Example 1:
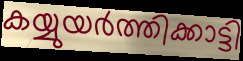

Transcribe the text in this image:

കയ്യുയർത്തിക്കാട്ടി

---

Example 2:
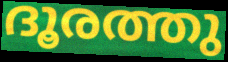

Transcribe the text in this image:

ദൂരത്തു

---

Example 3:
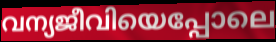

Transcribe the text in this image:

വന്യജീവിയെപ്പോലെ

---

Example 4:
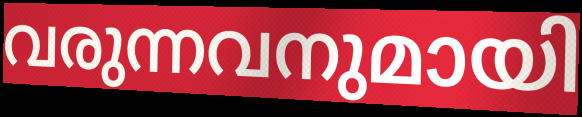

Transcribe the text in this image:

വരുന്നവനുമായി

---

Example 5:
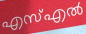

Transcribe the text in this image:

എസ്എൽ